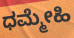
ಧಮ್ಮೇಹಿ